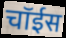
चॉईस